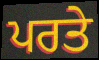
ਪਰਤੇ